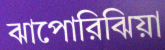
ঝাপোরিঝিয়া